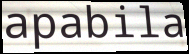
apabila